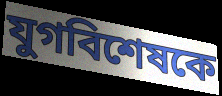
যুগবিশেষকে